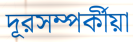
দূরসম্পর্কীয়া